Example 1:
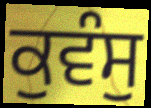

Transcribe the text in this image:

ਕੁਵੰਸੁ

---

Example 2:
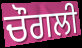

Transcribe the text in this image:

ਚੌਗਲੀ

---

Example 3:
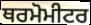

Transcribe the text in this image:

ਥਰਮੋਮੀਟਰ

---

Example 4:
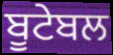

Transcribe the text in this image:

ਬੂਟੇਬਲ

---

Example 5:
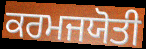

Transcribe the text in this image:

ਕਰਮਜਯੋਤੀ